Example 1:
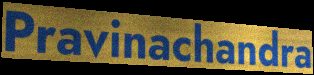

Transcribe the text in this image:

Pravinachandra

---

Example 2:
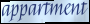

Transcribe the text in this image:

appartment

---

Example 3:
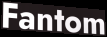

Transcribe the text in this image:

Fantom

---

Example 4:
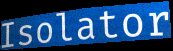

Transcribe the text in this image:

Isolator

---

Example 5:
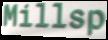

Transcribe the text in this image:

Millsp